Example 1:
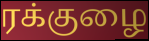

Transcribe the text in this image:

ரக்குழை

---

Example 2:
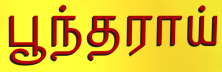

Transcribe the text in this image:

பூந்தராய்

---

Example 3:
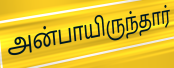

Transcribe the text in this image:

அன்பாயிருந்தார்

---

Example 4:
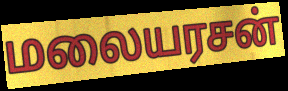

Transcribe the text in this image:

மலையரசன்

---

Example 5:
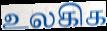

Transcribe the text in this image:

உலகிக